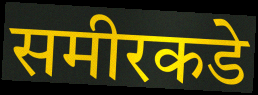
समीरकडे